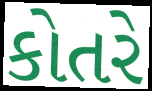
કોતરે